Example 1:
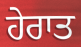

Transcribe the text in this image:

ਹੇਰਾਤ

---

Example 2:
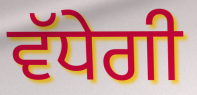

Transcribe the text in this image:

ਵੱਧੇਗੀ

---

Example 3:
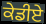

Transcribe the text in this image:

ਕੇਡੀਏ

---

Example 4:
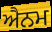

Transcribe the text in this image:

ਐਨਮ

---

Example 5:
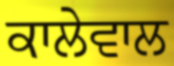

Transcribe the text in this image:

ਕਾਲੇਵਾਲ